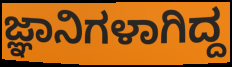
ಜ್ಞಾನಿಗಳಾಗಿದ್ದ